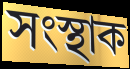
সংস্থাক